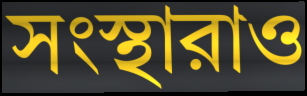
সংস্থারাও